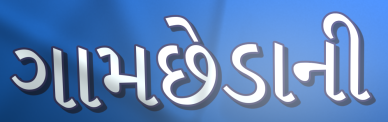
ગામછેડાની